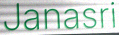
Janasri